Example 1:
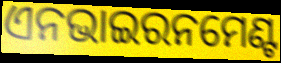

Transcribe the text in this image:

ଏନଭାଇରନମେଣ୍ଟ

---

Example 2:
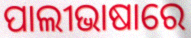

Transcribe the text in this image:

ପାଲୀଭାଷାରେ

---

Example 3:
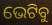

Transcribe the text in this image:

ଭେଟିବୁ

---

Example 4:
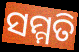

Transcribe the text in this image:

ସମ୍ମତି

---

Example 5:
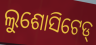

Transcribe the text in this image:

ଲୁଶୋସିଟେଡ୍